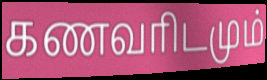
கணவரிடமும்